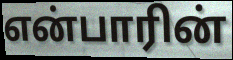
என்பாரின்